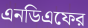
এনডিএফের